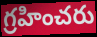
గ్రహించరు